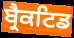
ਬ੍ਰੈਕਟਿਡ